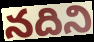
నదిని